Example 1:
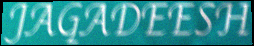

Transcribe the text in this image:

JAGADEESH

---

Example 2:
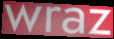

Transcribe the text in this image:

wraz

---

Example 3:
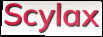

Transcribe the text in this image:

Scylax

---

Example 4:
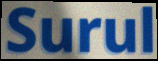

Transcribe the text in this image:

Surul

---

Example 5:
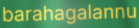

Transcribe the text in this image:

barahagalannu